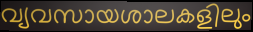
വ്യവസായശാലകളിലും